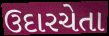
ઉદારચેતા